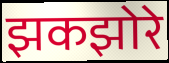
झकझोरे